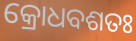
କ୍ରୋଧବଶତଃ